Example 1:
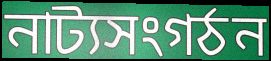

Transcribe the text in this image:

নাট্যসংগঠন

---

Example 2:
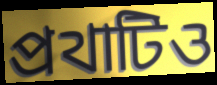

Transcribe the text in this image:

প্রথাটিও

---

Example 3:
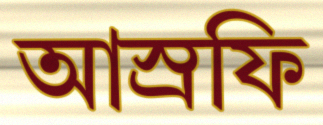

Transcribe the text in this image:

আস্রফি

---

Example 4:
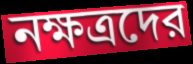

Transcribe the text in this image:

নক্ষত্রদের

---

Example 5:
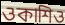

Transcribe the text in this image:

ওকাশিও